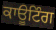
ਕਾਊਟਿੰਗ